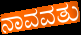
ನಾವವತು